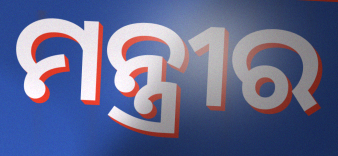
ମନ୍ତ୍ରୀର